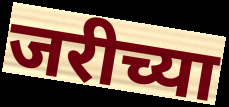
जरीच्या